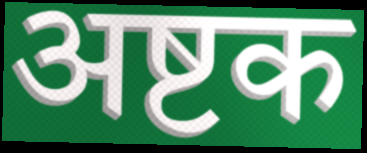
अष्टक